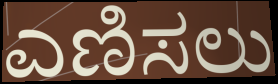
ಎಣಿಸಲು